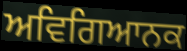
ਅਵਿਗਿਆਨਕ